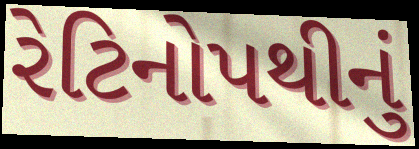
રેટિનોપથીનું